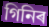
গিনিৰ